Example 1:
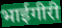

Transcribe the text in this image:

भाईगीरी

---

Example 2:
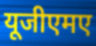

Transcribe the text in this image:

यूजीएमए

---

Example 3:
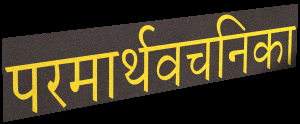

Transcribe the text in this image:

परमार्थवचनिका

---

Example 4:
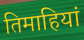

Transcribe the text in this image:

तिमाहियां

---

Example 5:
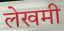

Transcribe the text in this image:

लेखमी